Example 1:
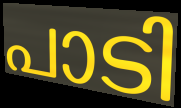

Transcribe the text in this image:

പാടി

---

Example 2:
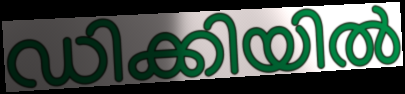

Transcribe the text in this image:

ഡിക്കിയിൽ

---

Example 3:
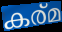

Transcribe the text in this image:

കര്മ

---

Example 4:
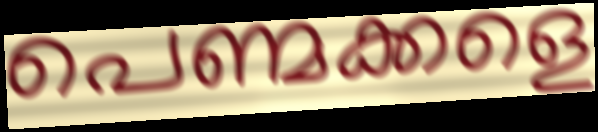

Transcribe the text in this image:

പെണ്മക്കളെ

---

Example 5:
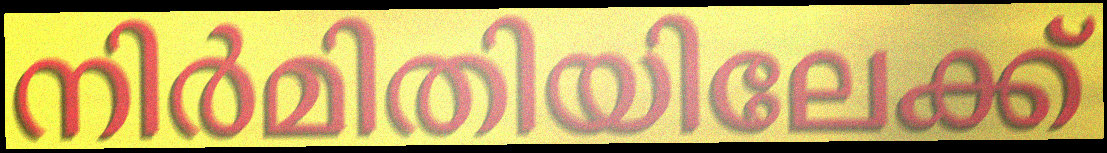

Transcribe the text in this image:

നിർമിതിയിലേക്ക്